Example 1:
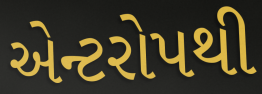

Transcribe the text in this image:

એન્ટરોપથી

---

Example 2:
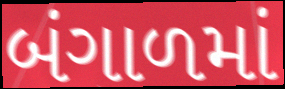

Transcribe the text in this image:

બંગાળમાં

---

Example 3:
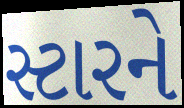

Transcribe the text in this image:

સ્ટારને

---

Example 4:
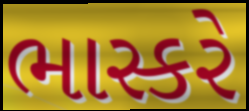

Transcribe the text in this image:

ભાસ્કરે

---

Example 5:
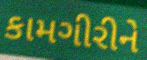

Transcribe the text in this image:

કામગીરીને